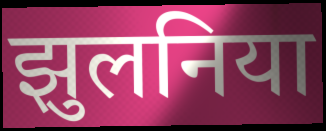
झुलनिया